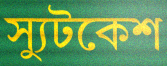
স্যুটকেশ